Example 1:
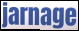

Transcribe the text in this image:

jarnage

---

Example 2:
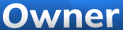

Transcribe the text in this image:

Owner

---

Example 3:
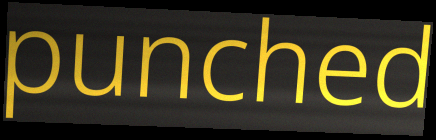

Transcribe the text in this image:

punched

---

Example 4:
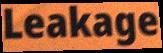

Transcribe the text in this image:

Leakage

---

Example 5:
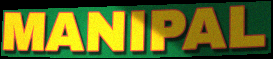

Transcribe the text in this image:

MANIPAL